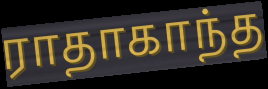
ராதாகாந்த